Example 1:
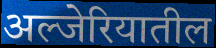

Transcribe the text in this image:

अल्जेरियातील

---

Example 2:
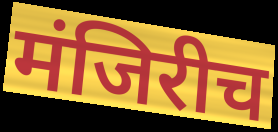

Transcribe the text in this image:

मंजिरीच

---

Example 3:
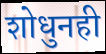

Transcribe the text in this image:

शोधुनही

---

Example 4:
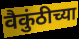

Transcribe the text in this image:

वैकुंठीच्या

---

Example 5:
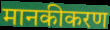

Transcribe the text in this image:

मानकीकरण